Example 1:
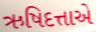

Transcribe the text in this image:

ઋષિદત્તાએ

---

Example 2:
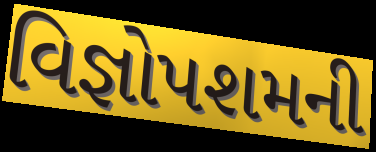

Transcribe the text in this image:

વિજ્ઞોપશમની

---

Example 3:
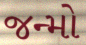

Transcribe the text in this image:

જન્મો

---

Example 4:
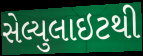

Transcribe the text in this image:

સેલ્યુલાઇટથી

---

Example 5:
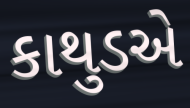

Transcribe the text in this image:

કાથુડએ